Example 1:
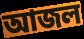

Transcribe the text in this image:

আজল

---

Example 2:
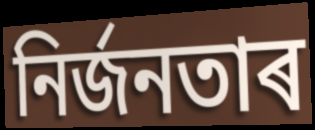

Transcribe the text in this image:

নিৰ্জনতাৰ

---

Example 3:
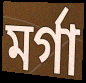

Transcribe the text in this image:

মৰ্গা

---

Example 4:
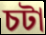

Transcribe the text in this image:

চটা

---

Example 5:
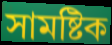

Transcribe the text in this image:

সামষ্টিক